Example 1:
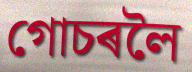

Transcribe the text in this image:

গোচৰলৈ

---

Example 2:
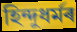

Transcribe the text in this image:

হিন্দুধৰ্মৰ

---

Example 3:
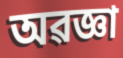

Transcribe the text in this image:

অৱজ্ঞা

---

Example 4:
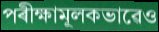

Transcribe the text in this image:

পৰীক্ষামূলকভাৱেও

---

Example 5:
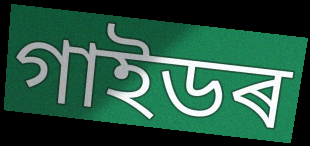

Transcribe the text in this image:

গাইডৰ